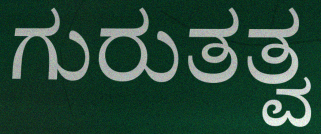
ಗುರುತತ್ವ